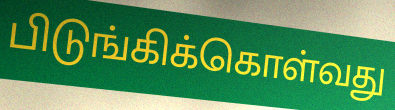
பிடுங்கிக்கொள்வது